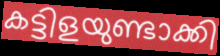
കട്ടിളയുണ്ടാക്കി